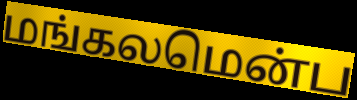
மங்கலமென்ப